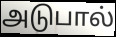
அடுபால்